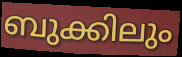
ബുക്കിലും